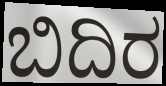
ಬಿದಿರ